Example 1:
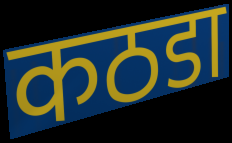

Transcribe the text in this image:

कठडा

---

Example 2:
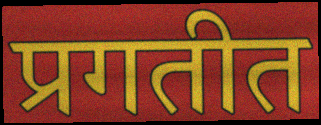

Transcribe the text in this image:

प्रगतीत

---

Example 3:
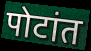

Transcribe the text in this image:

पोटांत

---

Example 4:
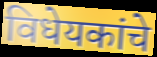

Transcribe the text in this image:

विधेयकांचे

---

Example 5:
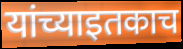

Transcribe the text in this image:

यांच्याइतकाच